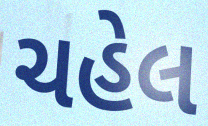
ચહેલ